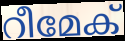
റീമേക്